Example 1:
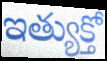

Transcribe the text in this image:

ఇత్యుక్తో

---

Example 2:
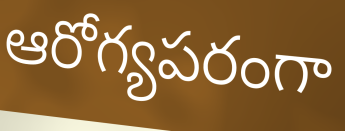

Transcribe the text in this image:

ఆరోగ్యపరంగా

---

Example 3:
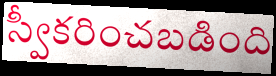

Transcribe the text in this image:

స్వీకరించబడింది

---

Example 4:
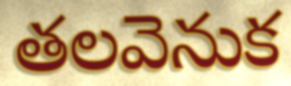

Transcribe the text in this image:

తలవెనుక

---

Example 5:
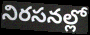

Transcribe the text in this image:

నిరసనల్లో